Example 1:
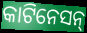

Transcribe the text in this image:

କାଟିନେସନ୍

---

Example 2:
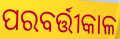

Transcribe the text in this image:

ପରବର୍ତ୍ତୀକାଳ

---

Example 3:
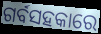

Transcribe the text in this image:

ଗର୍ବସହକାରେ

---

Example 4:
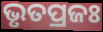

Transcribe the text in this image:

ଭୃତପ୍ରଜଃ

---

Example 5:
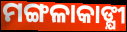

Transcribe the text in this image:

ମଙ୍ଗଳାକାଙ୍କ୍ଷୀ